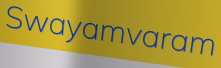
Swayamvaram